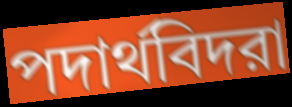
পদার্থবিদরা